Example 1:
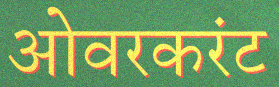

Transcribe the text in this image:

ओवरकरंट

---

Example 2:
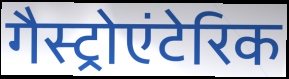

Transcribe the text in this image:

गैस्ट्रोएंटेरिक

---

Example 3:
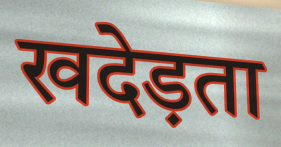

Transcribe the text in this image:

खदेड़ता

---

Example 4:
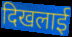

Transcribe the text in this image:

दिखलाई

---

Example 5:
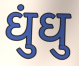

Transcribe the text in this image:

धुंधु